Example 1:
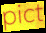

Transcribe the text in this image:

pict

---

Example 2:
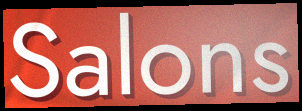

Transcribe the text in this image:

Salons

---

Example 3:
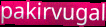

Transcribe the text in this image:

pakirvugal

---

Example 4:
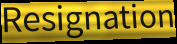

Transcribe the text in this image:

Resignation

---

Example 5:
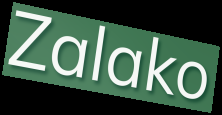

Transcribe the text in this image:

Zalako